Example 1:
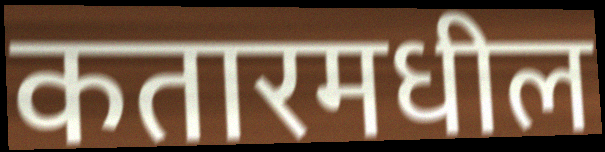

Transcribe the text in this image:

कतारमधील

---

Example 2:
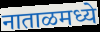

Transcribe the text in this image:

नाताळमध्ये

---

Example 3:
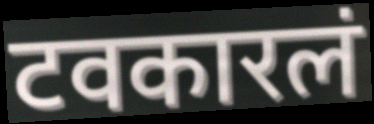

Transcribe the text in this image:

टवकारलं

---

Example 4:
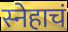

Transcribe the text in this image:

स्नेहाचं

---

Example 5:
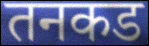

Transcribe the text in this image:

तनकड